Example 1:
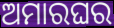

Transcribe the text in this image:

ଅମାରଘର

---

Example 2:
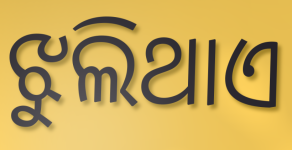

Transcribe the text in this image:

ଝୁଲିଥାଏ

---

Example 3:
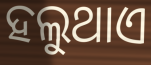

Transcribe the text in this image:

ହଲୁଥାଏ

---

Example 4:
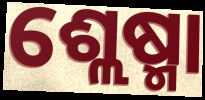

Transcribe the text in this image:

ଶ୍ଲେଷ୍ମା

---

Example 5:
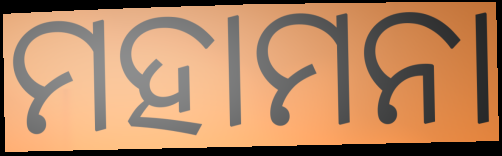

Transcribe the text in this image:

ମହାମନା